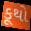
કૂથો